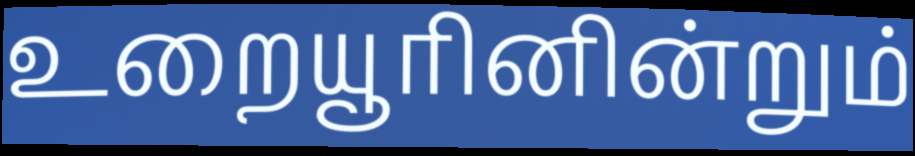
உறையூரினின்றும்